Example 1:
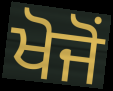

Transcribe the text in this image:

ਖੋਜੋਂ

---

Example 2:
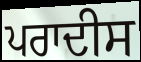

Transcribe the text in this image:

ਪਰਾਦੀਸ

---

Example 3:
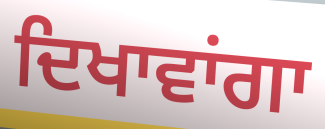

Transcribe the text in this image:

ਦਿਖਾਵਾਂਗਾ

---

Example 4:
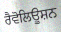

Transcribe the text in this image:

ਰੈਵੋਲਿਊਸ਼ਨ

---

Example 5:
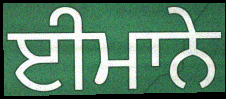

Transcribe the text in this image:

ਈਮਾਨੇ